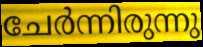
ചേർന്നിരുന്നു